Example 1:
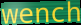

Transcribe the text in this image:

wench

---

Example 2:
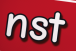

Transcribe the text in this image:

nst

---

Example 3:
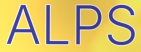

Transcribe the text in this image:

ALPS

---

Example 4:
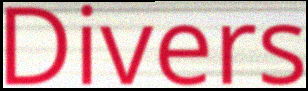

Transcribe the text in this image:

Divers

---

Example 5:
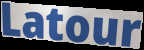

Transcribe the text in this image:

Latour